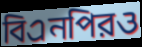
বিএনপিরও